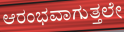
ಆರಂಭವಾಗುತ್ತಲೇ